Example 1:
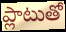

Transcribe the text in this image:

ప్లాటుతో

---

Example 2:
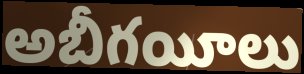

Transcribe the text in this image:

అబీగయీలు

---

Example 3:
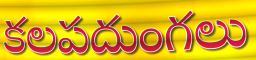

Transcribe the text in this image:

కలపదుంగలు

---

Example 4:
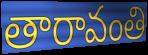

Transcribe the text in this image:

తారావంతి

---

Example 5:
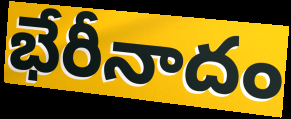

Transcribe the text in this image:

భేరీనాదం